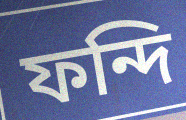
ফন্দি